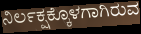
ನಿರ್ಲಕ್ಷಕ್ಕೊಳಗಾಗಿರುವ